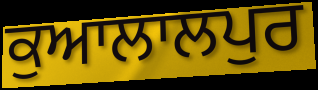
ਕੁਆਲਾਲਪੁਰ